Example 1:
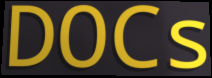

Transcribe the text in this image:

DOCs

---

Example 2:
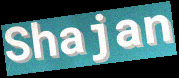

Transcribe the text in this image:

Shajan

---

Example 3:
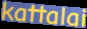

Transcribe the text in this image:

kattalai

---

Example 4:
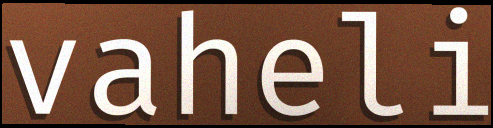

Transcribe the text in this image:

vaheli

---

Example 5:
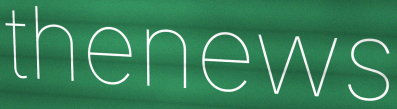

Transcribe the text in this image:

thenews